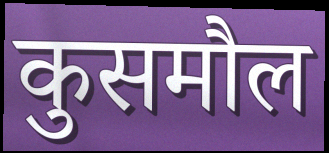
कुसमौल